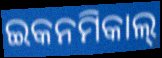
ଇକନମିକାଲ୍